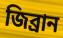
জিব্রান